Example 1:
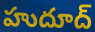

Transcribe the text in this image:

హుదూద్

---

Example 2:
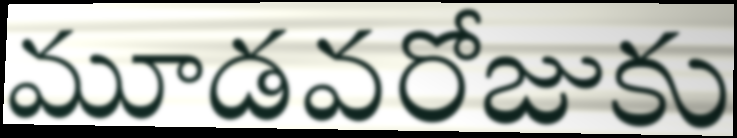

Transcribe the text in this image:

మూడవరోజుకు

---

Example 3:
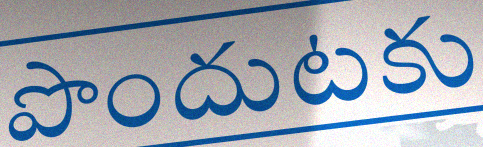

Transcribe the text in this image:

పొందుటకు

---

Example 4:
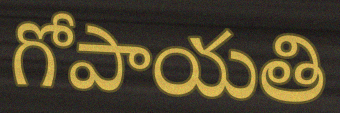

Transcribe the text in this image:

గోపాయతి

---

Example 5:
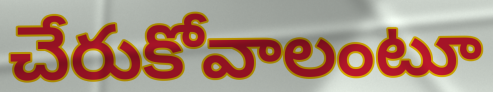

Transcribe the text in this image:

చేరుకోవాలంటూ